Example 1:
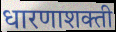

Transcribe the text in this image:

धारणाशक्ती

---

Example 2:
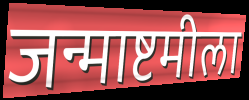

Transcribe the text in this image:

जन्माष्टमीला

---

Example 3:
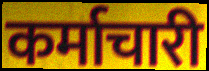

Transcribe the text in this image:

कर्माचारी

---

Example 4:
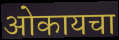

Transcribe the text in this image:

ओकायचा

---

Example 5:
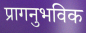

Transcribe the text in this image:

प्रागनुभविक